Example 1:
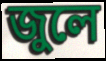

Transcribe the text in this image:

জুলে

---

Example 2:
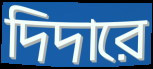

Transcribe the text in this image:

দিদারে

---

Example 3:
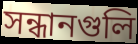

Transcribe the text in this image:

সন্ধানগুলি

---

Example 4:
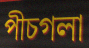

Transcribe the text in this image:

পীচগলা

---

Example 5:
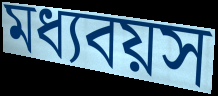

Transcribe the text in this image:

মধ্যবয়স